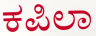
ಕಪಿಲಾ